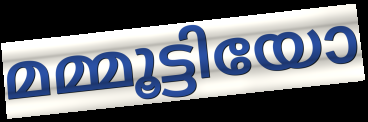
മമ്മൂട്ടിയോ